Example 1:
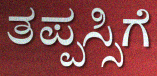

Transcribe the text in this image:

ತಪ್ಪಸ್ಸಿಗೆ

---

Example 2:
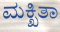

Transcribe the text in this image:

ಮಕ್ಖಿತಾ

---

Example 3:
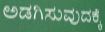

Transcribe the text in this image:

ಅಡಗಿಸುವುದಕ್ಕೆ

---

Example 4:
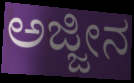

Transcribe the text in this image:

ಅಜ್ಜೀನ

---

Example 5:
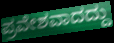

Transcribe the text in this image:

ಪ್ರವೇಶವಾದದ್ದು